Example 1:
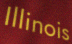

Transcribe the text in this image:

Illinois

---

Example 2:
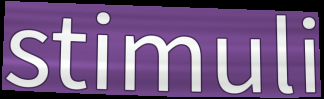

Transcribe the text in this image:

stimuli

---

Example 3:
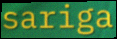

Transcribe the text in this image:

sariga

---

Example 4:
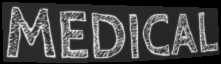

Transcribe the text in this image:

MEDICAL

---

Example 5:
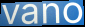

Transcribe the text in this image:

vano